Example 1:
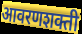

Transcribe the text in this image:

आवरणशक्ती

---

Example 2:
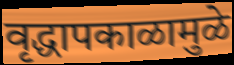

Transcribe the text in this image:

वृद्धापकाळामुळे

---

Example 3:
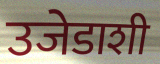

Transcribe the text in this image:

उजेडाशी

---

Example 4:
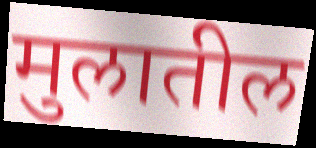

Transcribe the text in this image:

मुलातील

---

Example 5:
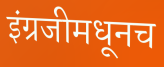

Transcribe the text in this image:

इंग्रजीमधूनच